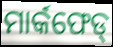
ମାର୍କଫେଡ୍